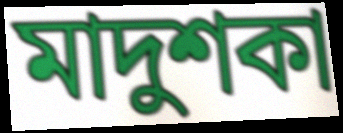
মাদুশকা